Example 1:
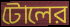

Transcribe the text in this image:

টোলের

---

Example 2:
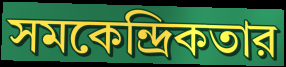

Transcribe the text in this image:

সমকেন্দ্রিকতার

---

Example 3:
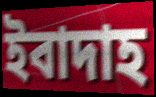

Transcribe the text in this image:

ইবাদাহ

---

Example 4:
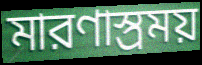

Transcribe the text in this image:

মারণাস্ত্রময়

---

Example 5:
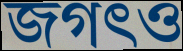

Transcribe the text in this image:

জগৎও